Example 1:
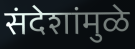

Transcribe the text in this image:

संदेशांमुळे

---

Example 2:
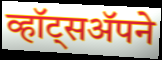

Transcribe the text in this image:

व्हॉट्सॲपने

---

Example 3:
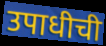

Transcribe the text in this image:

उपाधीची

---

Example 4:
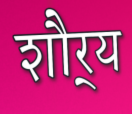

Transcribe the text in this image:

शौर्य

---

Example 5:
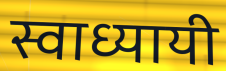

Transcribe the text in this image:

स्वाध्यायी